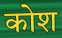
कोश